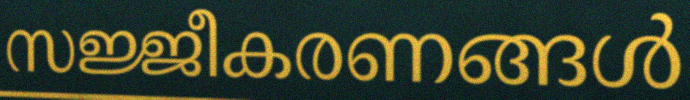
സജ്ജീകരണങ്ങൾ